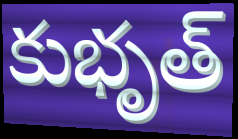
కుభృత్